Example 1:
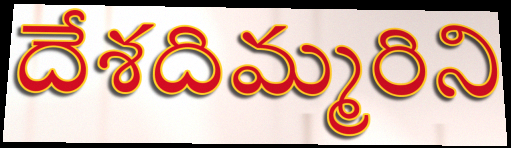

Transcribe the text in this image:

దేశదిమ్మరిని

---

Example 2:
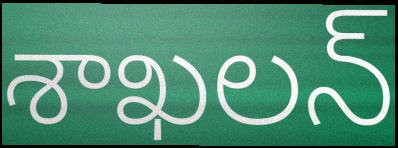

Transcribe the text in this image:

శాఖలన్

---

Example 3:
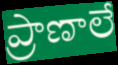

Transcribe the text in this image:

ప్రాణాలే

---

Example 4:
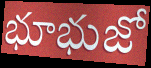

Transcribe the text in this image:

భూభుజో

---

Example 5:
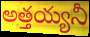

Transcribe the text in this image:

అత్తయ్యనీ